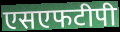
एसएफटीपी